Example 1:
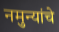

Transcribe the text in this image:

नमुन्यांचे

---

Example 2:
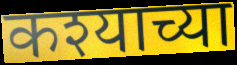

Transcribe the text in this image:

कश्याच्या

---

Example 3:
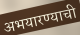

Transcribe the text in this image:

अभयारण्याची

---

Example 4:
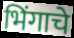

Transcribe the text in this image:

भिंगाचे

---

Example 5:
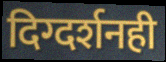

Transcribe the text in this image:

दिग्दर्शनही